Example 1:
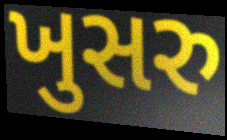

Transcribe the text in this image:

ખુસરુ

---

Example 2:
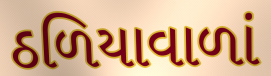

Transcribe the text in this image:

ઠળિયાવાળાં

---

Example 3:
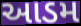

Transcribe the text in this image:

આડમ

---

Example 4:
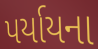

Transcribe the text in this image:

પર્યાયના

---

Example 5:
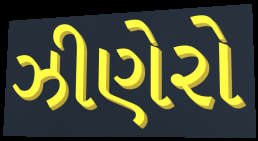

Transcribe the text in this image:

ઝીણેરો